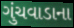
ગુંચવાડાના